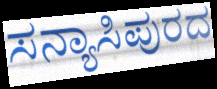
ಸನ್ಯಾಸಿಪುರದ